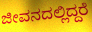
ಜೀವನದಲ್ಲಿದ್ದರೆ